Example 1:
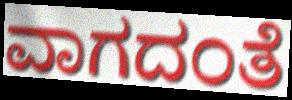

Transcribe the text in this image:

ವಾಗದಂತೆ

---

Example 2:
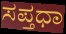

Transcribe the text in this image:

ಸಪ್ತಧಾ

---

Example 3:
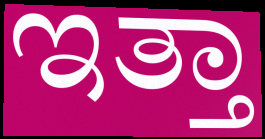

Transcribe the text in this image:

ಇತ್ತಾ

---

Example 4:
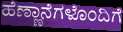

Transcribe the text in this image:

ಹೆಣ್ಣಾನೆಗಳೊಂದಿಗೆ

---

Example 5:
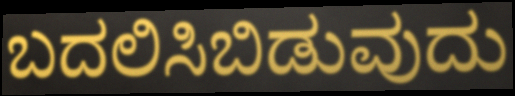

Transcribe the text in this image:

ಬದಲಿಸಿಬಿಡುವುದು